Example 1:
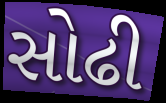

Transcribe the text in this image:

સોઢી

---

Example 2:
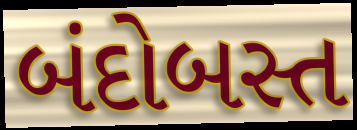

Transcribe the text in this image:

બંદોબસ્ત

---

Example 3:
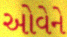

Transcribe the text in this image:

ઓવેને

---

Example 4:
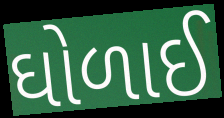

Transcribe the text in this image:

ઘોળાઈ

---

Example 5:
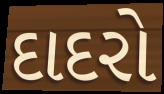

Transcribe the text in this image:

દાદરો